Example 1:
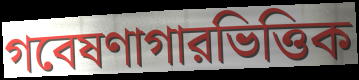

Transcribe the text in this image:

গবেষণাগারভিত্তিক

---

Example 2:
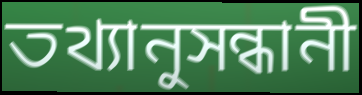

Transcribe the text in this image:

তথ্যানুসন্ধানী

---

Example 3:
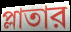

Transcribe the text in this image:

প্লাতার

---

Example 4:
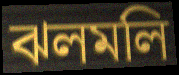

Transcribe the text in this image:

ঝলমলি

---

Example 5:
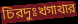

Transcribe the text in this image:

চিরদুঃখগাথার